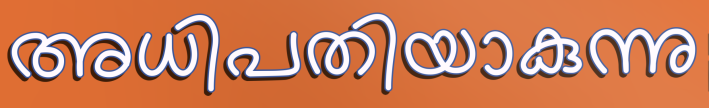
അധിപതിയാകുന്നു